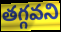
తగ్గవని